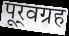
पूर्वग्रह